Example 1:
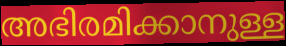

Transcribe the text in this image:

അഭിരമിക്കാനുള്ള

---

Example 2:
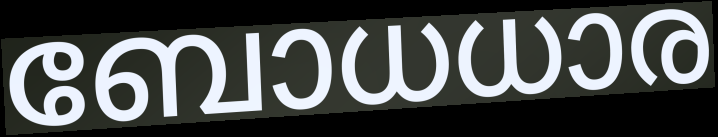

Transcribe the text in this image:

ബോധധാര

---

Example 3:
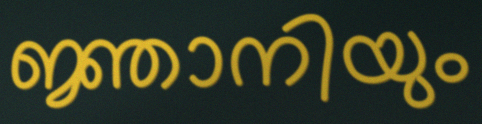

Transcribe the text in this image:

ജ്ഞാനിയും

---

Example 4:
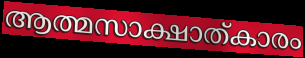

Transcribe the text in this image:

ആത്മസാക്ഷാത്കാരം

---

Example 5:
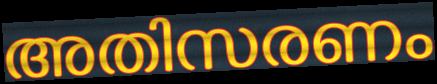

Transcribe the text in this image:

അതിസരണം